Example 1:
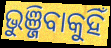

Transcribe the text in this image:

ଭୁଞ୍ଜିବାକୁହିଁ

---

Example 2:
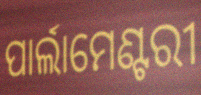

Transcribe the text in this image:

ପାର୍ଲାମେଣ୍ଟରୀ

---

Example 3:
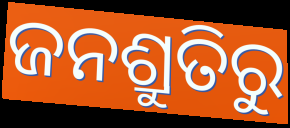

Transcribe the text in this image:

ଜନଶ୍ରୁତିରୁ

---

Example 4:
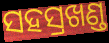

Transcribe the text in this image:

ସହସ୍ରଖଣ୍ଡ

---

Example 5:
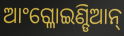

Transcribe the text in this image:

ଆଂଗ୍ଳୋଇଣ୍ଡିଆନ୍